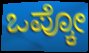
ಒಪ್ಕೋ